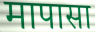
मापासा